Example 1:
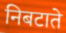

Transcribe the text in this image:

निबटाते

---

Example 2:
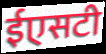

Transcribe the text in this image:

ईएसटी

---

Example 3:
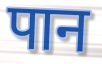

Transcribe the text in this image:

पान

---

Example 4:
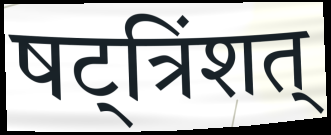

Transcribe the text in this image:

षट्त्रिंशत्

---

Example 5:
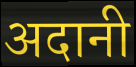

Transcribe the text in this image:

अदानी